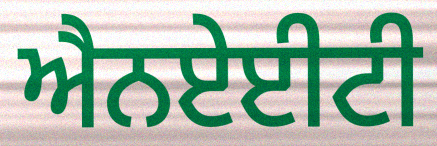
ਐਨਏਈਟੀ